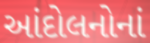
આંદોલનોનાં